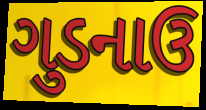
ગુડનાઉ